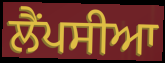
ਲੈਂਪਸੀਆ